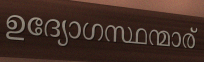
ഉദ്യോഗസ്ഥന്മാര്